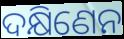
ଦକ୍ଷିଣେନ